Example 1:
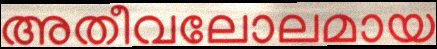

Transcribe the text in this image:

അതീവലോലമായ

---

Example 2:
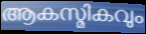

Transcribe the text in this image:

ആകസ്മികവും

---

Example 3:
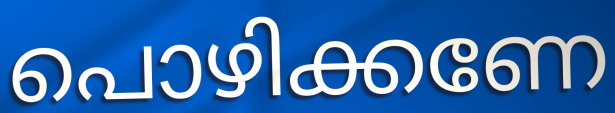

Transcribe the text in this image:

പൊഴിക്കണേ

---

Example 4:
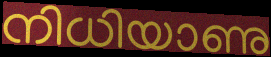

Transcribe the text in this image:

നിധിയാണു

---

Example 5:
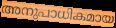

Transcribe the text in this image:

അനുപാധികമായ